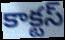
కాక్టస్